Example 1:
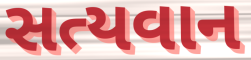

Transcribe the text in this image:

સત્યવાન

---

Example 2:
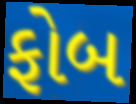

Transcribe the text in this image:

ફોબ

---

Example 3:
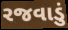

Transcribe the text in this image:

રજવાડું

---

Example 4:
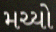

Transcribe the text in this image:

મચ્યો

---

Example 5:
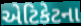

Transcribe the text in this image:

એટિકેટના